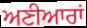
ਅਣੀਆਰਾਂ